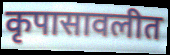
कृपासावलीत